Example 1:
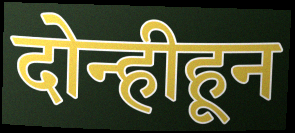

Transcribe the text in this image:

दोन्हीहून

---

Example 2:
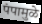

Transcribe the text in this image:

पंपामुळे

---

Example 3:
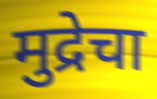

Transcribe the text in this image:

मुद्रेचा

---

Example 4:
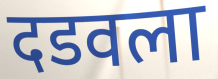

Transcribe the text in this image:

दडवला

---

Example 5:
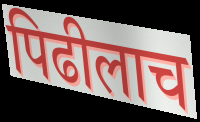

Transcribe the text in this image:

पिढीलाच